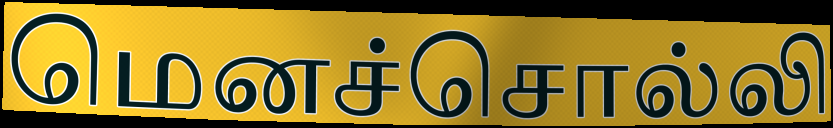
மெனச்சொல்லி